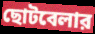
ছোটবেলার